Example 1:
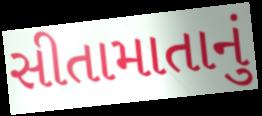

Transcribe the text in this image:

સીતામાતાનું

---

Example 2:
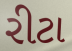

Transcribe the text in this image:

રીટા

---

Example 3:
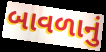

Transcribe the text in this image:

બાવળાનું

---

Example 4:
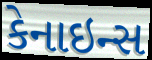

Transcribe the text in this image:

કેનાઇન્સ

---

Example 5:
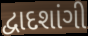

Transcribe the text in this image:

દ્વાદશાંગી